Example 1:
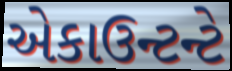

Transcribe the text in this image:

એકાઉન્ટન્ટે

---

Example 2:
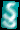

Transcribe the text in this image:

ડુ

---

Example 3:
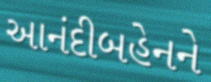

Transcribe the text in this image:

આનંદીબહેનને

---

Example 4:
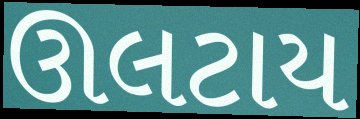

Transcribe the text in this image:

ઊલટાય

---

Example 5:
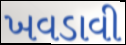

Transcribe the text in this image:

ખવડાવી